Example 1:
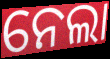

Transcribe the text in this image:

ନେଲା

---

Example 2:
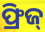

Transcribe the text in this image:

ଫ୍ରିଜ୍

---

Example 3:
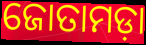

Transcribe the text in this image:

ଜୋତାମଡ଼ା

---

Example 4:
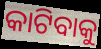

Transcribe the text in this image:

କାଟିବାକୁ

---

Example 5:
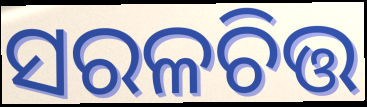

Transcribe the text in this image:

ସରଳଚିତ୍ତ